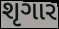
શૃગાર